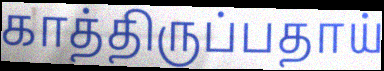
காத்திருப்பதாய்